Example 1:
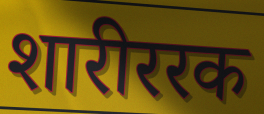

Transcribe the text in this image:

शारीररक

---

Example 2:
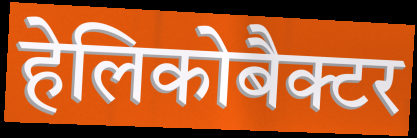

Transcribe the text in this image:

हेलिकोबैक्टर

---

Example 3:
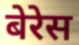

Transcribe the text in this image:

बेरेस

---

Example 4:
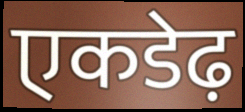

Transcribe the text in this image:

एकडेढ़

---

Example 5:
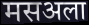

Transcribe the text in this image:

मसअला